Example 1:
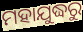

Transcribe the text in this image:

ମହାଯୁଦ୍ଧରୁ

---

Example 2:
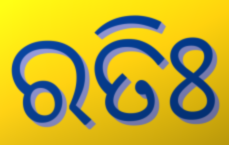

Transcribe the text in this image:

ରତିଃ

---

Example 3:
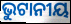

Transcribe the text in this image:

ଭୁଟାନୀୟ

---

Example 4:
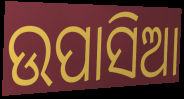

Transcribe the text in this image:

ଉପାସିଆ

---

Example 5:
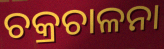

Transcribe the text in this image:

ଚକ୍ରଚାଳନା